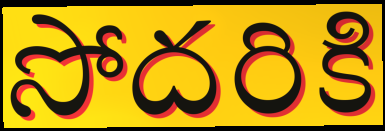
సోదరికి